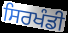
ਸਿਰਖੰਡੀ